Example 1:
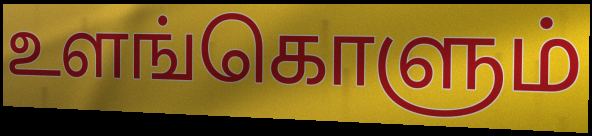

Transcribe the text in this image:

உளங்கொளும்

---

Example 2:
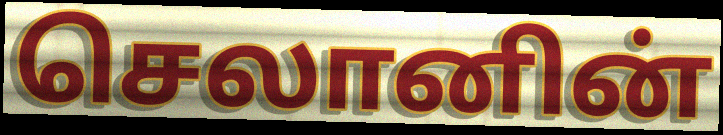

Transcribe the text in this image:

செலானின்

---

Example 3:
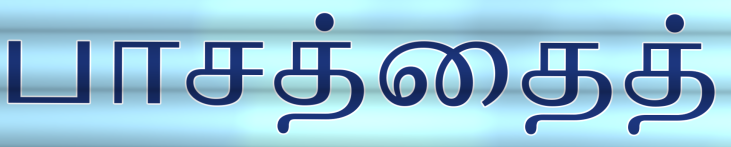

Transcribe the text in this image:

பாசத்தைத்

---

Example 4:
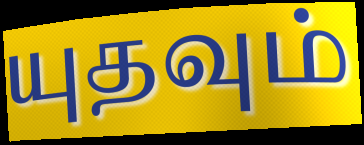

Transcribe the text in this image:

யுதவும்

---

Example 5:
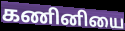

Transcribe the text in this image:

கணினியை